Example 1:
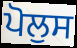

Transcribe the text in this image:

ਪੋਲੁਸ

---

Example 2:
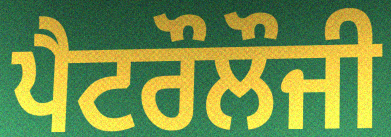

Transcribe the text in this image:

ਪੈਟਰੌਲੌਜੀ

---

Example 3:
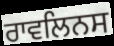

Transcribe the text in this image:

ਰਾਵਲਿਨਸ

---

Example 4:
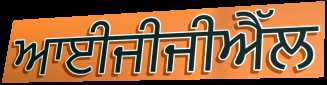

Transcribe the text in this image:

ਆਈਜੀਜੀਐੱਲ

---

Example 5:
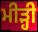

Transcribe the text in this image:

ਮੀੜ੍ਹੀ